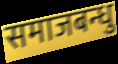
समाजबन्धु